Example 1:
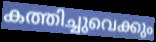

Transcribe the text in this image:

കത്തിച്ചുവെക്കും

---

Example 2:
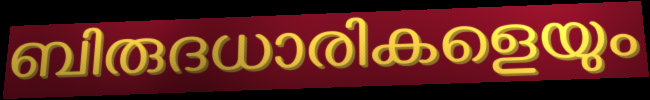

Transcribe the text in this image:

ബിരുദധാരികളെയും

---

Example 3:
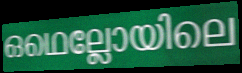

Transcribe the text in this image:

ഒഥെല്ലോയിലെ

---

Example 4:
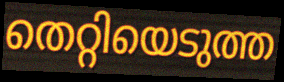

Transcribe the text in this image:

തെറ്റിയെടുത്ത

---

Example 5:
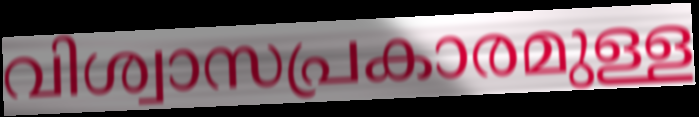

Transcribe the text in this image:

വിശ്വാസപ്രകാരമുള്ള